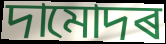
দামোদৰ